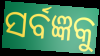
ସର୍ବଜ୍ଞକୁ